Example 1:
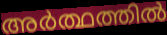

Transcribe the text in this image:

അർത്ഥത്തിൽ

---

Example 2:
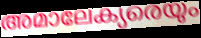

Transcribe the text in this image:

അമാലേക്യരെയും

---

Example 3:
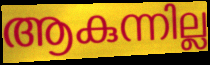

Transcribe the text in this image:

ആകുന്നില്ല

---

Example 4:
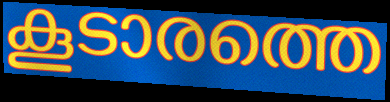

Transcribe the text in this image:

കൂടാരത്തെ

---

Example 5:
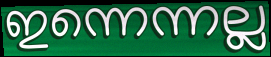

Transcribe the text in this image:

ഇന്നെന്നല്ല